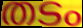
തടം